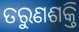
ତରୁଣଶକ୍ତି